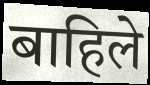
बाहिले